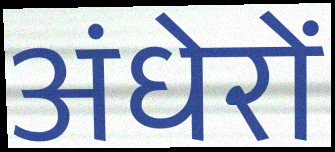
अंधेरों